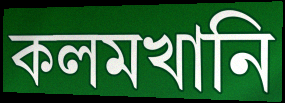
কলমখানি